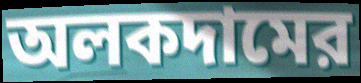
অলকদামের